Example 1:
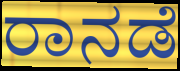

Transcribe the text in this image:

ರಾನಡೆ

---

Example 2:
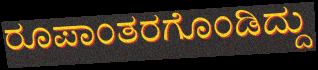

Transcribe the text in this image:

ರೂಪಾಂತರಗೊಂಡಿದ್ದು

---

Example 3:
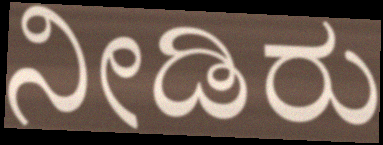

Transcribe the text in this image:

ನೀಡಿರು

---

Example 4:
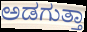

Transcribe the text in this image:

ಅಡಗುತ್ತಾ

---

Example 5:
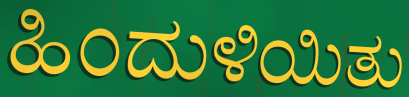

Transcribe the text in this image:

ಹಿಂದುಳಿಯಿತು